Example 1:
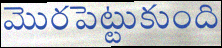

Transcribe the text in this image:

మొరపెట్టుకుంది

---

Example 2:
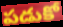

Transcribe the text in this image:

పడుకో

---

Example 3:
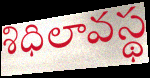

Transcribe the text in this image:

శిధిలావస్థ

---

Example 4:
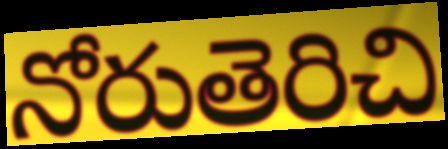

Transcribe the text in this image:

నోరుతెరిచి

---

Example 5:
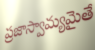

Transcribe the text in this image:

ప్రజాస్వామ్యమైతే